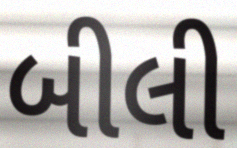
બીલી